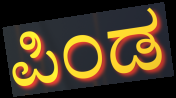
ಪಿಂಡ